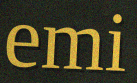
emi